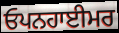
ਓਪਨਹਾਈਮਰ